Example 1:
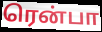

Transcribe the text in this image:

ரென்பா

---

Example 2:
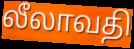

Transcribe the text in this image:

லீலாவதி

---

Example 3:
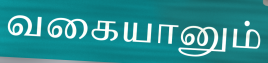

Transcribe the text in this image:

வகையானும்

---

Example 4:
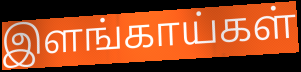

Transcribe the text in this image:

இளங்காய்கள்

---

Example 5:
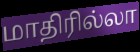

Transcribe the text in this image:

மாதிரில்லா